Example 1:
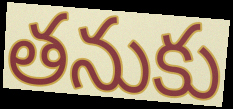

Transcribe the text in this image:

తనుకు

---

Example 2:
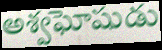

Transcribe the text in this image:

అశ్వఘోషుడు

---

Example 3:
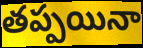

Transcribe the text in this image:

తప్పయినా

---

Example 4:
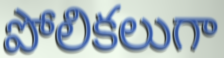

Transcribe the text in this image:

పోలికలుగా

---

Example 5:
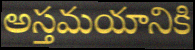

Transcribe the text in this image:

అస్తమయానికి